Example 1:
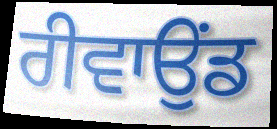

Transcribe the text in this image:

ਰੀਵਾਉਂਡ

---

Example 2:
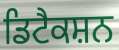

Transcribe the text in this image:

ਡਿਟੈਕਸ਼ਨ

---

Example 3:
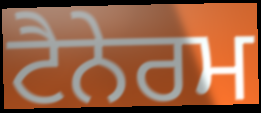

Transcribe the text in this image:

ਟੈਨੇਰਮ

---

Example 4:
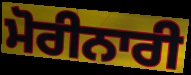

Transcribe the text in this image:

ਮੋਰੀਨਾਰੀ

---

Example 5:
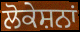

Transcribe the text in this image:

ਲੋਕੇਸ਼ਨਾਂ